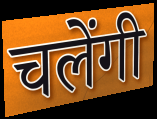
चलेंगी